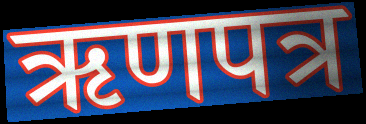
ऋणपत्र